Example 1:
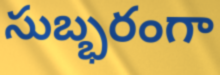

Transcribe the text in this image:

సుబ్భరంగా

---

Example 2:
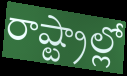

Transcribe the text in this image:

రాష్ట్రాల్లో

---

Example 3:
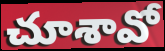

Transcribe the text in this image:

చూశావో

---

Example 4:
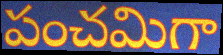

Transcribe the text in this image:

పంచమిగా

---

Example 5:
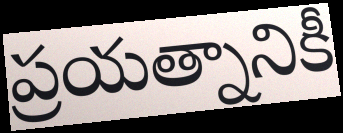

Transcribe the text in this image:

ప్రయత్నానికీ